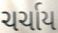
ચર્ચાય